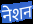
नेशन